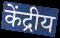
केंद्रीय